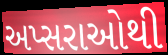
અપ્સરાઓથી